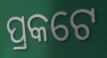
ପ୍ରକଟେ